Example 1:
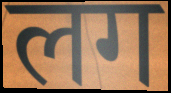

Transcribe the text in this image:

लग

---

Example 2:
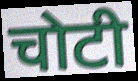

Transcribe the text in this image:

चोटी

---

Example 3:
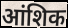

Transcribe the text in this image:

आंशिक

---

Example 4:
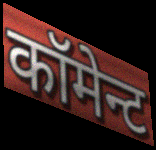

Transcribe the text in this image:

कॉमेन्ट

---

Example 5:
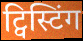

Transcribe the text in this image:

ट्विस्टिंग